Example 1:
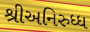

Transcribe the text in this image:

શ્રીઅનિરુધ્ધ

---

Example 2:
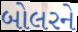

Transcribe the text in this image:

બોલરને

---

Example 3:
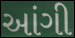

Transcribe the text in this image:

આંગી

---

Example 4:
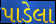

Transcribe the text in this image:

પાડેલા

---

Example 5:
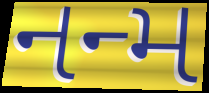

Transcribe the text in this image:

નન્મ